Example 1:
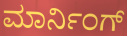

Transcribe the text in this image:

ಮಾರ್ನಿಂಗ್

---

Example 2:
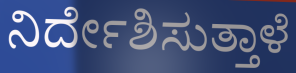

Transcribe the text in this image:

ನಿರ್ದೇಶಿಸುತ್ತಾಳೆ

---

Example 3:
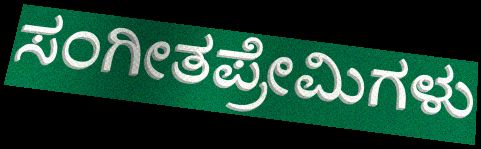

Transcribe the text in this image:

ಸಂಗೀತಪ್ರೇಮಿಗಳು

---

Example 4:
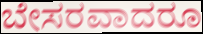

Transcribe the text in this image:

ಬೇಸರವಾದರೂ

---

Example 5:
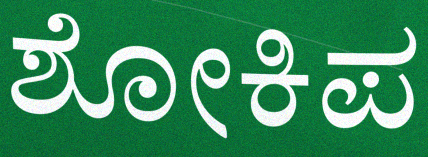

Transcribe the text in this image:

ಶೋಕಿಪ